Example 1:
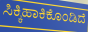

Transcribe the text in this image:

ಸಿಕ್ಕಿಹಾಕಿಕೊಂಡಿದೆ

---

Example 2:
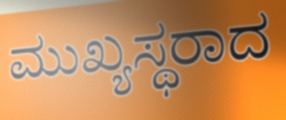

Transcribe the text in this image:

ಮುಖ್ಯಸ್ಥರಾದ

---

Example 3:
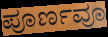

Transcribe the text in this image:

ಪೂರ್ಣವೂ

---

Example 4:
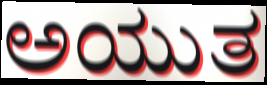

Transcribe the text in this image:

ಅಯುತ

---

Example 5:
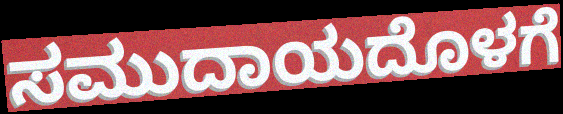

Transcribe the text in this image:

ಸಮುದಾಯದೊಳಗೆ